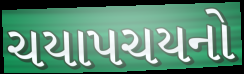
ચયાપચયનો